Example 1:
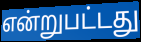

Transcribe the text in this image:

என்றுபட்டது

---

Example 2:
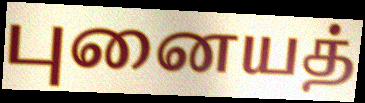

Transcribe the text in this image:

புனையத்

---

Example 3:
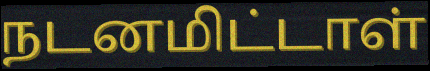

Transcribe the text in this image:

நடனமிட்டாள்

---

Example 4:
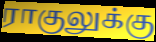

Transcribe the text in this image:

ராகுலுக்கு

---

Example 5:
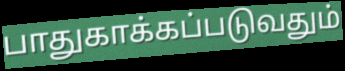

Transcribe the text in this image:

பாதுகாக்கப்படுவதும்